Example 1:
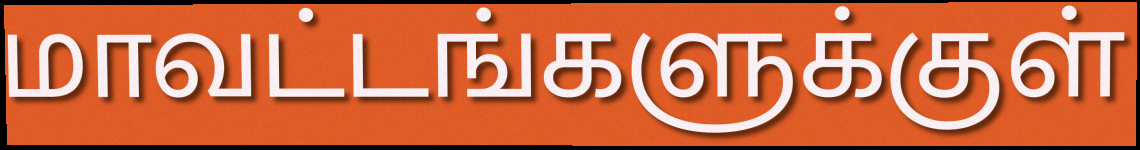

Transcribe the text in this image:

மாவட்டங்களுக்குள்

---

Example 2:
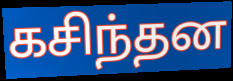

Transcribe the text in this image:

கசிந்தன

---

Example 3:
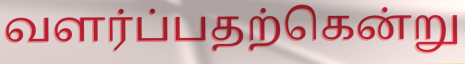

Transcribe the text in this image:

வளர்ப்பதற்கென்று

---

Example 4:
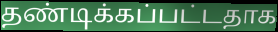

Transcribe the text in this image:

தண்டிக்கப்பட்டதாக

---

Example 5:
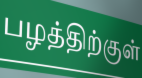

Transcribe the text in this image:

பழத்திற்குள்